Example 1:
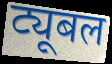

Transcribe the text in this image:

ट्यूबल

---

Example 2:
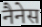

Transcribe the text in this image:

नैनेस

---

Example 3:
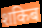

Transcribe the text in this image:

शकिब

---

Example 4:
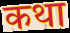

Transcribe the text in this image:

कथा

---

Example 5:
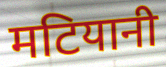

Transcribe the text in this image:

मटियानी